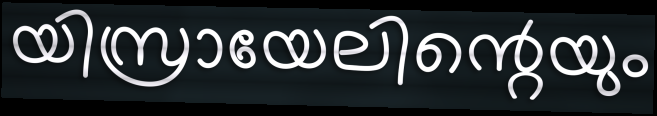
യിസ്രായേലിന്റെയും